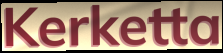
Kerketta